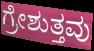
ಗ್ರೇಶುತ್ತವು